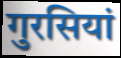
गुरसियां